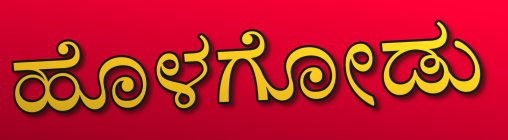
ಹೊಳಗೋಡು